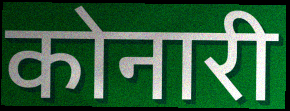
कोनारी